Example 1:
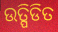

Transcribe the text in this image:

ଉତ୍ପିଡିତ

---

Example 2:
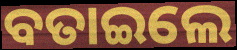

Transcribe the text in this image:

ବତାଇଲେ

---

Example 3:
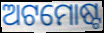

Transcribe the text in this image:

ଅଟମୋଷ୍ଟ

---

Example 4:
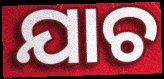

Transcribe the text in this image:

ଯାଚ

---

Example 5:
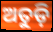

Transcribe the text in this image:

ଅତୁଡ଼ି